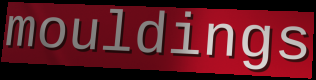
mouldings